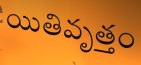
యితివృత్తం